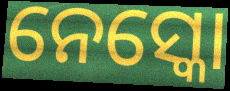
ନେସ୍କୋ